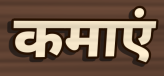
कमाएं